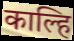
काल्हि